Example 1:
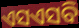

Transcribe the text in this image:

ଏସଏସବି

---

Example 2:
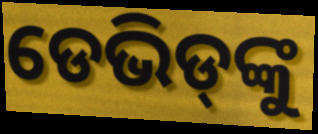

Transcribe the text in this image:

ଡେଭିଡ୍‌ଙ୍କୁ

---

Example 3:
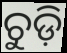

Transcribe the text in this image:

ଚୁଡ଼ି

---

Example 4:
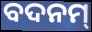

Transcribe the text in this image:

ବଦନମ୍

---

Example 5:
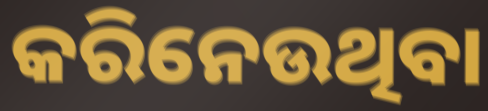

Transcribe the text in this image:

କରିନେଉଥିବା